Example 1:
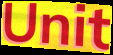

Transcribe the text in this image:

Unit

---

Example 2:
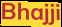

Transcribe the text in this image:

Bhajji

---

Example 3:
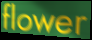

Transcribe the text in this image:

flower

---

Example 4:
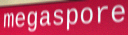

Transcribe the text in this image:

megaspore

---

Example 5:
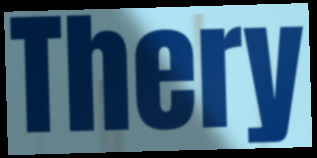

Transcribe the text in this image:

Thery